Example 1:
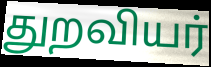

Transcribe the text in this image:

துறவியர்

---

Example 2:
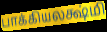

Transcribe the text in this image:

பாக்கியலக்ஷ்மி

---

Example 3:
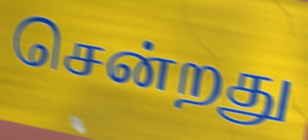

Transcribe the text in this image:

சென்றது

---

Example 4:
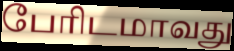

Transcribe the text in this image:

பேரிடமாவது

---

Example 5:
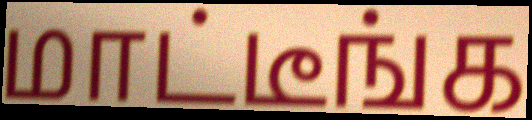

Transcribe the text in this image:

மாட்டீங்க